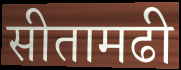
सीतामढी